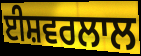
ਈਸ਼ਵਰਲਾਲ